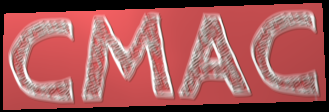
CMAC